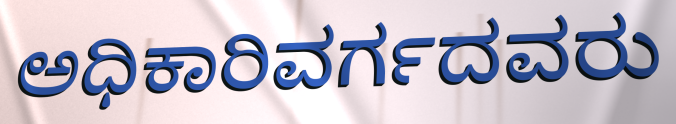
ಅಧಿಕಾರಿವರ್ಗದವರು